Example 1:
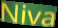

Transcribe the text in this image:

Niva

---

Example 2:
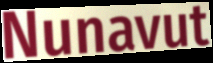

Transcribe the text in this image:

Nunavut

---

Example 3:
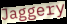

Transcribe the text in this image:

Jaggery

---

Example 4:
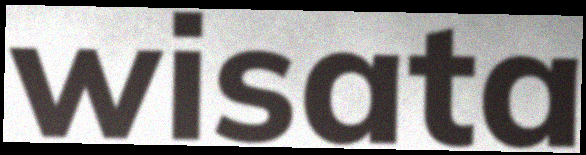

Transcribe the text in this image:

wisata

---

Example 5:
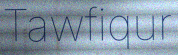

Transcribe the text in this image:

Tawfiqur